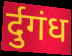
र्दुगंध